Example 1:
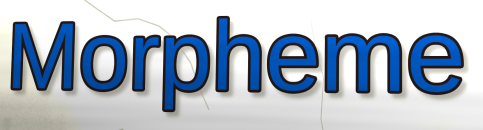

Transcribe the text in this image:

Morpheme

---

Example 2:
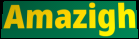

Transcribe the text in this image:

Amazigh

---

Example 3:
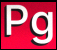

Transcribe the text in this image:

Pg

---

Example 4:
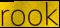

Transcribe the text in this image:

rook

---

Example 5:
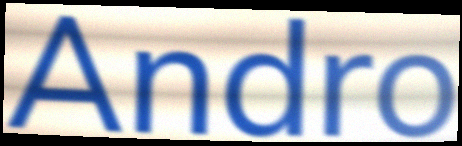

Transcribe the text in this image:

Andro